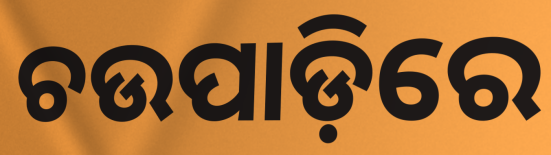
ଚଉପାଡ଼ିରେ